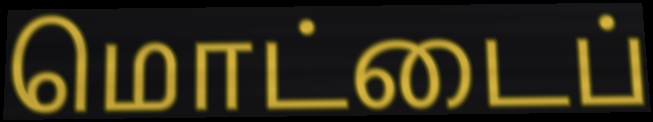
மொட்டைப்